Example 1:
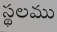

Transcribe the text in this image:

స్థలము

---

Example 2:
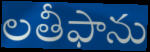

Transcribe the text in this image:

లతీఫాను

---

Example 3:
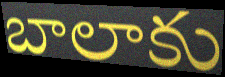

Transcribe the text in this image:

బాలాకు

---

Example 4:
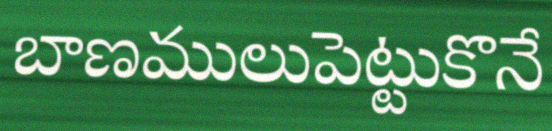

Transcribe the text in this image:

బాణములుపెట్టుకొనే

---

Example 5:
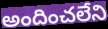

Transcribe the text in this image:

అందించలేని